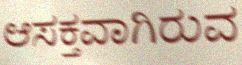
ಆಸಕ್ತವಾಗಿರುವ